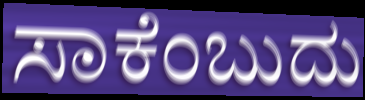
ಸಾಕೆಂಬುದು